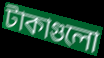
টাকাগুলো